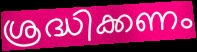
ശ്രദ്ധിക്കണം